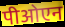
पीओएन